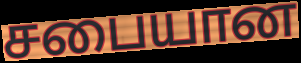
சபையான